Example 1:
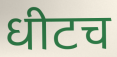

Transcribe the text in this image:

धीटच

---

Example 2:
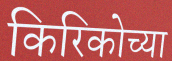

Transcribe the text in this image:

किरिकोच्या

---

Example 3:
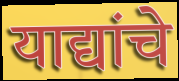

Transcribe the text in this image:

याद्यांचे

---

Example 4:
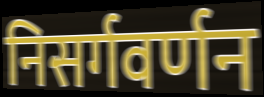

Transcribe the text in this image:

निसर्गवर्णन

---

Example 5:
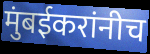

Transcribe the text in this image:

मुंबईकरांनीच